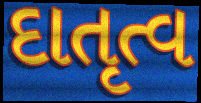
દાતૃત્વ